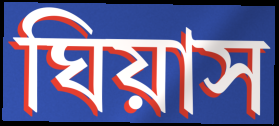
ঘিয়াস